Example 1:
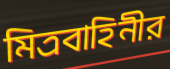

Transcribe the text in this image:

মিত্রবাহিনীর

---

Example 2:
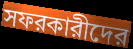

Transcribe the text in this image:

সফরকারীদের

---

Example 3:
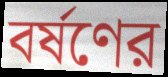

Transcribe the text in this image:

বর্ষণের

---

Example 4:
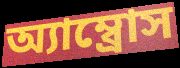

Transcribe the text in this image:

অ্যাম্ব্রোস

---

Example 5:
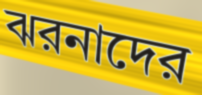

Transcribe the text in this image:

ঝরনাদের